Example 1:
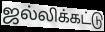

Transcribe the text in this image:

ஜல்லிக்கட்டு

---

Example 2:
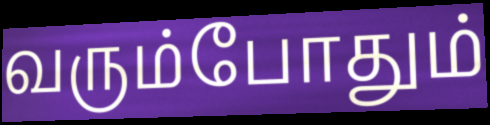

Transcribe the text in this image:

வரும்போதும்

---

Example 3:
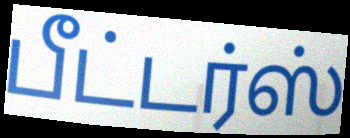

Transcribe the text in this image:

பீட்டர்ஸ்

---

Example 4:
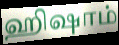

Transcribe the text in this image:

ஹிஷாம்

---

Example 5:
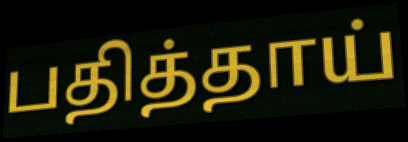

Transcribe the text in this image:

பதித்தாய்